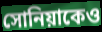
সোনিয়াকেও